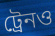
ট্রেনও